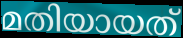
മതിയായത്